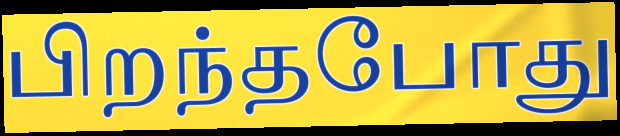
பிறந்தபோது